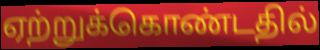
ஏற்றுக்கொண்டதில்